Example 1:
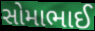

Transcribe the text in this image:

સોમાભાઈ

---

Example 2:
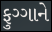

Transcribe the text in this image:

ફુગ્ગાને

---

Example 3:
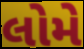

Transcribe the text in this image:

લોમે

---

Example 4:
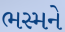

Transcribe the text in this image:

ભસ્મને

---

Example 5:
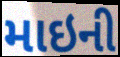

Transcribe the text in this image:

માઇની